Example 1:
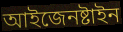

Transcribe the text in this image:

আইজেনষ্টাইন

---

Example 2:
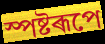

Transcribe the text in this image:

স্পষ্টৰূপে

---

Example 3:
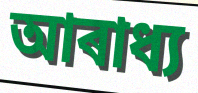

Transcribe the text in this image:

আৰাধ্য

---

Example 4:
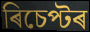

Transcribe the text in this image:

ৰিচেপ্টৰ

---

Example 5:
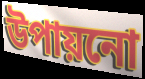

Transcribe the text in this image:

উপায়নো